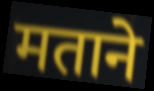
मताने